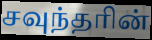
சவுந்தரின்